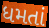
ધમતાં